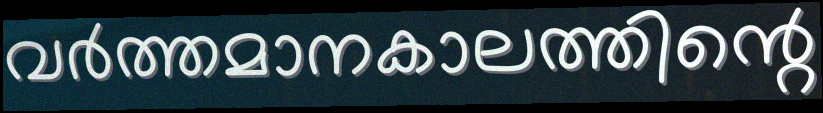
വർത്തമാനകാലത്തിന്റെ